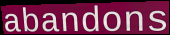
abandons